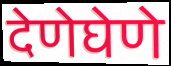
देणेघेणे